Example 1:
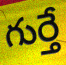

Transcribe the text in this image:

గుర్తే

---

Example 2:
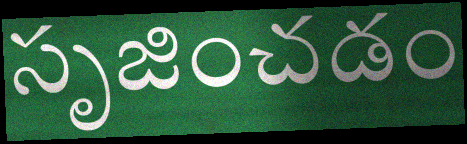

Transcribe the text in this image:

సృజించడం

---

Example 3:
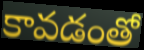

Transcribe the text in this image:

కావడంతో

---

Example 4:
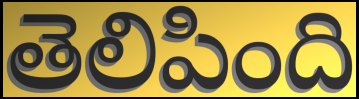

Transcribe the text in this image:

తెలిపింది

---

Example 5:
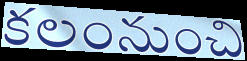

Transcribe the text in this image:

కలంనుంచి